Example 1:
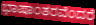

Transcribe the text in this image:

ಭಾಷಾಂತರವೆಂದರೆ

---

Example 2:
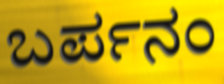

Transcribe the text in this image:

ಬರ್ಪನಂ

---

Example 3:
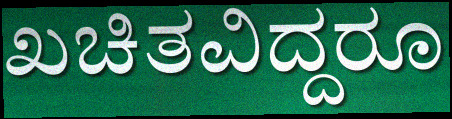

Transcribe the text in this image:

ಖಚಿತವಿದ್ದರೂ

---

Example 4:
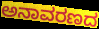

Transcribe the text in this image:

ಅನಾವರಣದ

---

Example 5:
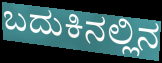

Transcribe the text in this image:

ಬದುಕಿನಲ್ಲಿನ